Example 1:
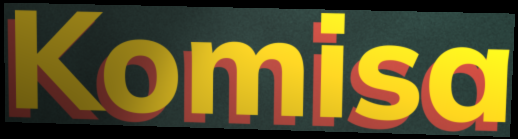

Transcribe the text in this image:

Komisa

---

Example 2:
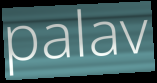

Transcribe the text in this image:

palav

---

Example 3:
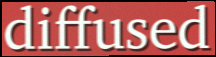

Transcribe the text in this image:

diffused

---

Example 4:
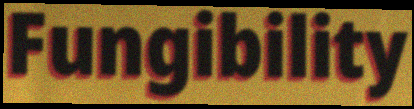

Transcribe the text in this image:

Fungibility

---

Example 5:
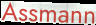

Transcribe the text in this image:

Assmann